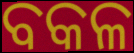
ବକଳ